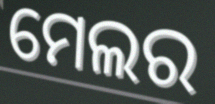
ମେଲର